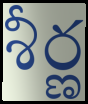
శీర్ణ